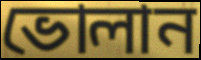
ভোলান